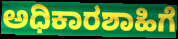
ಅಧಿಕಾರಶಾಹಿಗೆ